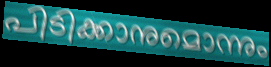
പിടിക്കാനുമൊന്നും